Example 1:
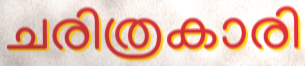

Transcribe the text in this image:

ചരിത്രകാരി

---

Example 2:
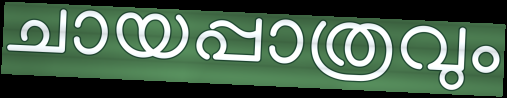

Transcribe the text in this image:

ചായപ്പാത്രവും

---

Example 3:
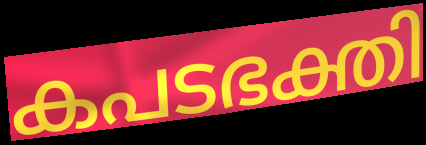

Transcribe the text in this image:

കപടഭക്തി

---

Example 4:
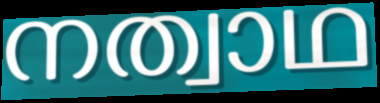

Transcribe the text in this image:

നത്വാഥ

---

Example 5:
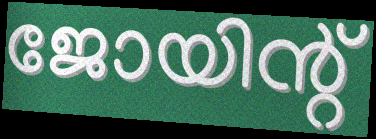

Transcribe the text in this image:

ജോയിന്റ്